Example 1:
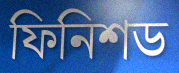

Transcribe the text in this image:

ফিনিশড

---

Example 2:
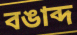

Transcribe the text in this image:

বঙাব্দ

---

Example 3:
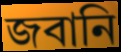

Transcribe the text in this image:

জবানি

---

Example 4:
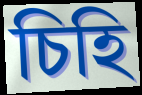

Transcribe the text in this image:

চিহি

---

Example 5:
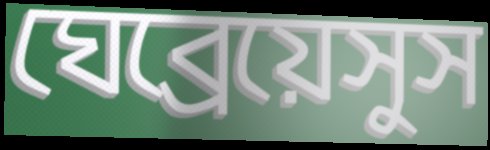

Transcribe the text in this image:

ঘেব্রেয়েসুস